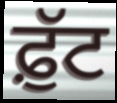
ਫ਼ੁੱਟ